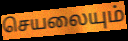
செயலையும்